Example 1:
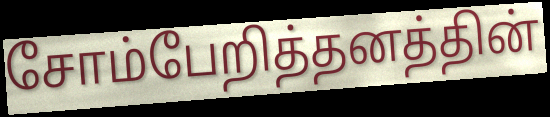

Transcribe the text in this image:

சோம்பேறித்தனத்தின்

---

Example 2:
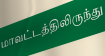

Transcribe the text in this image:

மாவட்டத்திலிருந்து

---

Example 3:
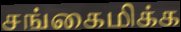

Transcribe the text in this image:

சங்கைமிக்க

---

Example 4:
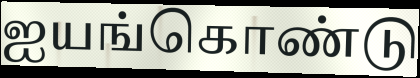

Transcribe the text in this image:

ஐயங்கொண்டு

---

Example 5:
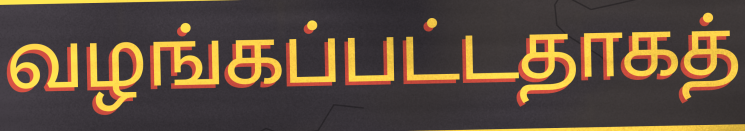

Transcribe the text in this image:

வழங்கப்பட்டதாகத்